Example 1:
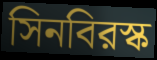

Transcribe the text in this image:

সিনবিরস্ক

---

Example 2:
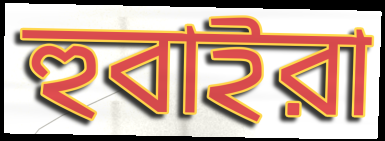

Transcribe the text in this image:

হুবাইরা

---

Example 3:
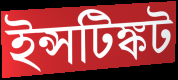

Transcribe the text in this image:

ইন্সটিঙ্কট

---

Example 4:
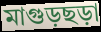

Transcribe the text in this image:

মাগুড়ছড়া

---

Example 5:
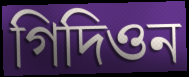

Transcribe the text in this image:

গিদিওন